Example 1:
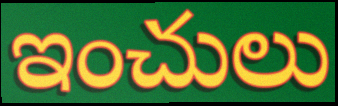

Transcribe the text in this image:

ఇంచులు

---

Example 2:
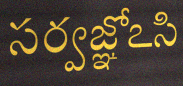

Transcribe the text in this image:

సర్వజ్ఞోఽసి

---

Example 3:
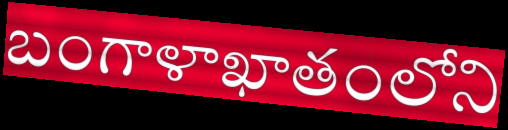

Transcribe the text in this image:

బంగాళాఖాతంలోని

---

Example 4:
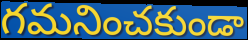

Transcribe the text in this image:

గమనించకుండా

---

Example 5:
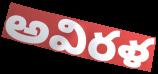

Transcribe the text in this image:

అవిరళ